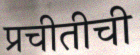
प्रचीतीची